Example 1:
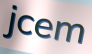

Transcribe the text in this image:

jcem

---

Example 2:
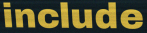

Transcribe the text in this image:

include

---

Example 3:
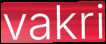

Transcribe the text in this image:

vakri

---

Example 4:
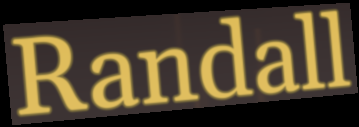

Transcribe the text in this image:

Randall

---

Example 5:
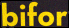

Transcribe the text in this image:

bifor